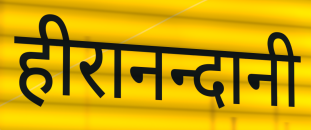
हीरानन्दानी